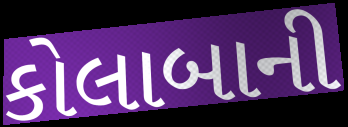
કોલાબાની